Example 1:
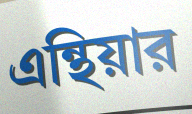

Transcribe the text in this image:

এন্থিয়ার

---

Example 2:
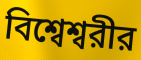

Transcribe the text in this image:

বিশ্বেশ্বরীর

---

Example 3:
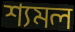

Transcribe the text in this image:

শ্যমল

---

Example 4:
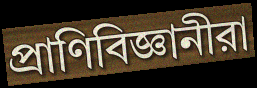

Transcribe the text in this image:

প্রাণিবিজ্ঞানীরা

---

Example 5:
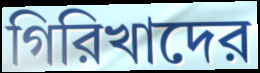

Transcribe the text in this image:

গিরিখাদের